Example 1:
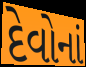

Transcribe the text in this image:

દેવોનાં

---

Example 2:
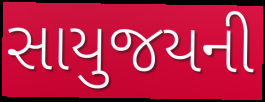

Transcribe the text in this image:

સાયુજયની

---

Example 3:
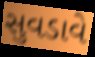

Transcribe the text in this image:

સુવડાવે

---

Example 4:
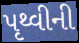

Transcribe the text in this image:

પૃથ્વીની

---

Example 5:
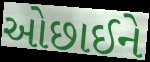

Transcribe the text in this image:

ઓછાઈને